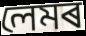
লেমৰ